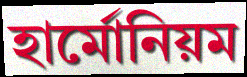
হার্মোনিয়ম